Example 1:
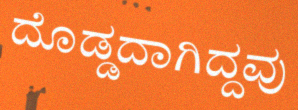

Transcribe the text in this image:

ದೊಡ್ಡದಾಗಿದ್ದವು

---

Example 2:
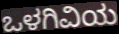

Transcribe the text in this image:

ಒಳಗಿವಿಯ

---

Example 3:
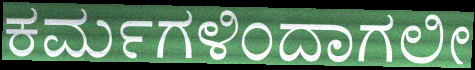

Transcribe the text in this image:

ಕರ್ಮಗಳಿಂದಾಗಲೀ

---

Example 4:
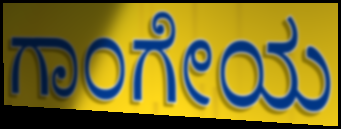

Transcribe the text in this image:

ಗಾಂಗೇಯ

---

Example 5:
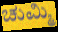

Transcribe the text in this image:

ಚುಮ್ಮಿ